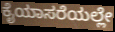
ಕೈಯಾಸರೆಯಲ್ಲೇ